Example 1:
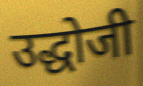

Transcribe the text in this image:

उद्धोजी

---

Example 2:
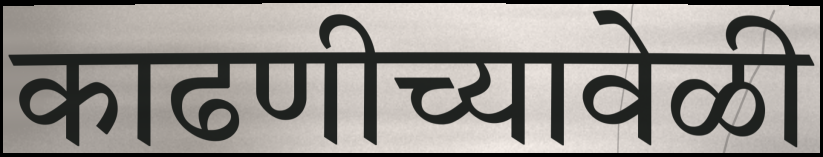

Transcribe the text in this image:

काढणीच्यावेळी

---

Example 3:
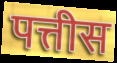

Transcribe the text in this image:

पत्तीस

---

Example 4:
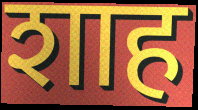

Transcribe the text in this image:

शाह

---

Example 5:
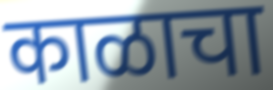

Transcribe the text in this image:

काळाचा